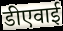
डीएवाई